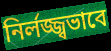
নির্লজ্জ্বভাবে